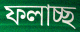
ফলাচ্ছ